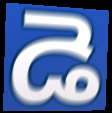
డె